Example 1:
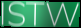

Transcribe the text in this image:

ISTW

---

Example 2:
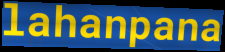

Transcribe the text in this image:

lahanpana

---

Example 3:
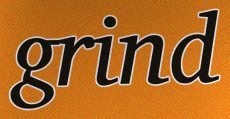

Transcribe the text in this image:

grind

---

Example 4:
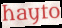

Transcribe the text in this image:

hayto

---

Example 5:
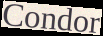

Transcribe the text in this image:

Condor